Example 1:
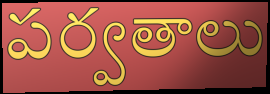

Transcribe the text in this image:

పర్వతాలు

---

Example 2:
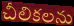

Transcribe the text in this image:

చీలికలను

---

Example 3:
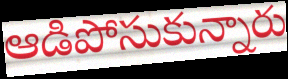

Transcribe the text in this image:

ఆడిపోసుకున్నారు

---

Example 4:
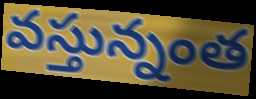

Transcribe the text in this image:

వస్తున్నంత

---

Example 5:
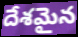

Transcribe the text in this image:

దేశమైన